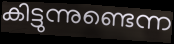
കിട്ടുന്നുണ്ടെന്ന